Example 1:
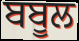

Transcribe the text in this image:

ਬਬੂਲ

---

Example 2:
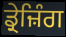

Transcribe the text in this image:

ਡ੍ਰੇਜ਼ਿੰਗ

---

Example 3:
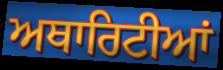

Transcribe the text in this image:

ਅਥਾਰਿਟੀਆਂ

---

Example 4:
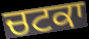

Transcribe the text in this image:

ਚਟਕਾ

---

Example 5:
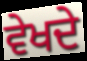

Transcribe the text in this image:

ਵੇਖਦੇ